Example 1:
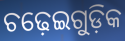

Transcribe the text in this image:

ଚଢ଼େଇଗୁଡ଼ିକ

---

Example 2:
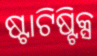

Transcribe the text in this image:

ଷ୍ଟାଟିଷ୍ଟିକ୍ସ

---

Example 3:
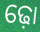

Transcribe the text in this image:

ଢ଼ୋ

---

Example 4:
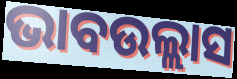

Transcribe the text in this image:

ଭାବଉଲ୍ଲାସ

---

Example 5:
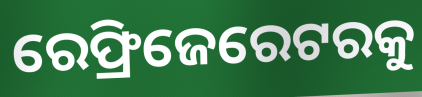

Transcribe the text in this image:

ରେଫ୍ରିଜେରେଟରକୁ